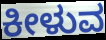
ಕೀಳುವ